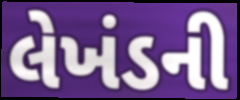
લેખંડની